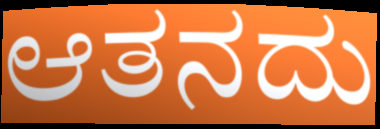
ಆತನದು